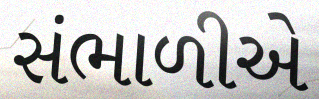
સંભાળીએ